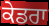
ਕੇਡਰਾ